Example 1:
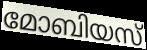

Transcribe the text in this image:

മോബിയസ്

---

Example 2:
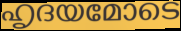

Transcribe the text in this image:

ഹൃദയമോടെ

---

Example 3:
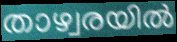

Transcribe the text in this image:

താഴ്വരയിൽ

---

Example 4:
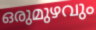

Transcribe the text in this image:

ഒരുമുഴവും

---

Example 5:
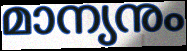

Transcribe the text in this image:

മാന്യനും